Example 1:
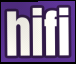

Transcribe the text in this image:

hifi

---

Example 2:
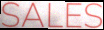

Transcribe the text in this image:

SALES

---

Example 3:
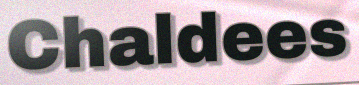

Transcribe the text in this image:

Chaldees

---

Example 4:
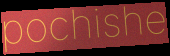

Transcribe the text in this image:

pochishe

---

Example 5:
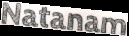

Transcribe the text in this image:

Natanam